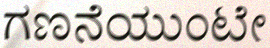
ಗಣನೆಯುಂಟೇ